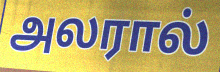
அலரால்